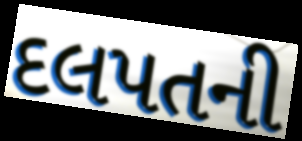
દલપતની